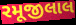
રમૂજીલાલ